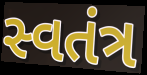
સ્વતંત્ર